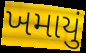
ખમાયું